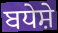
ਬਧੇਸ਼ੇ